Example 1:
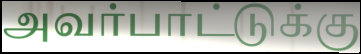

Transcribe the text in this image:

அவர்பாட்டுக்கு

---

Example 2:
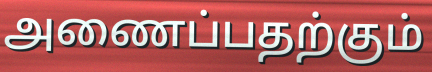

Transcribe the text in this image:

அணைப்பதற்கும்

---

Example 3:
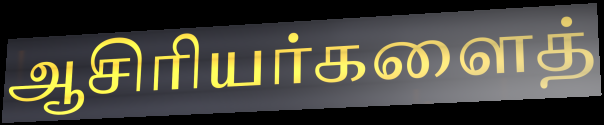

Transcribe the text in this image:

ஆசிரியர்களைத்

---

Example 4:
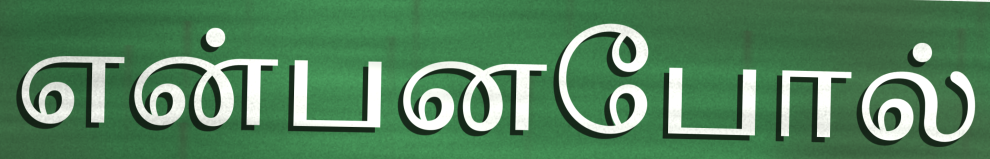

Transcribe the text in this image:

என்பனபோல்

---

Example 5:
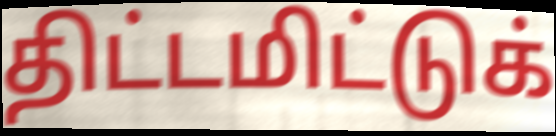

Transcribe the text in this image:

திட்டமிட்டுக்